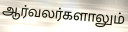
ஆர்வலர்களாலும்